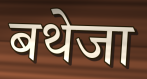
बथेजा